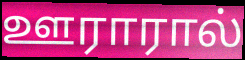
ஊராரால்